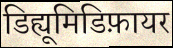
डिह्यूमिडिफ़ायर